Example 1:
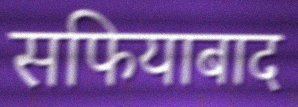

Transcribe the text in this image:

सफियाबाद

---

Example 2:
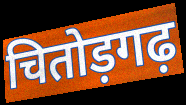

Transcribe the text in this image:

चितोड़गढ़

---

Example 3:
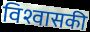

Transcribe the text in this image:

विश्वासकी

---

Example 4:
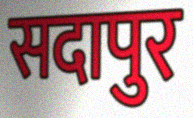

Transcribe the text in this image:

सदापुर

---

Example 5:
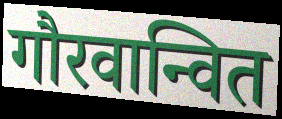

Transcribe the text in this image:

गौरवान्वित